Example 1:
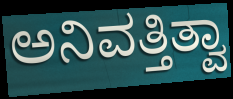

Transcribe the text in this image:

ಅನಿವತ್ತಿತ್ವಾ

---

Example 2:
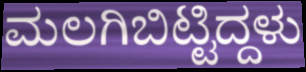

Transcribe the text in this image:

ಮಲಗಿಬಿಟ್ಟಿದ್ದಳು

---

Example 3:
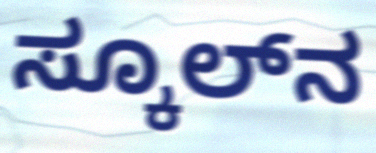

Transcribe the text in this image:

ಸ್ಕೂಲ್‌ನ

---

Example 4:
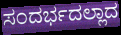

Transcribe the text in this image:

ಸಂದರ್ಭದಲ್ಲಾದ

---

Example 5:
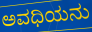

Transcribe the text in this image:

ಅವಧಿಯನು